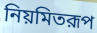
নিয়মিতরূপ